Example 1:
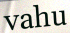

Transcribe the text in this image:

vahu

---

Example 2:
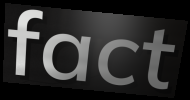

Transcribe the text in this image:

fact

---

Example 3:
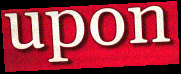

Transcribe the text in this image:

upon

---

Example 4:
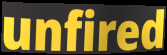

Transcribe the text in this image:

unfired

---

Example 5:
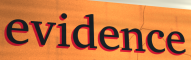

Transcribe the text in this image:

evidence